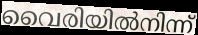
വൈരിയിൽനിന്ന്